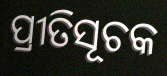
ପ୍ରୀତିସୂଚକ